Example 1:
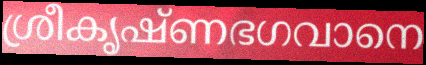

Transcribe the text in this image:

ശ്രീകൃഷ്ണഭഗവാനെ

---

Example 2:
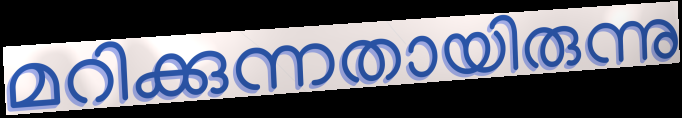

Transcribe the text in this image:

മറിക്കുന്നതായിരുന്നു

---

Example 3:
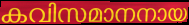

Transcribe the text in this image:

കവിസമാനനായ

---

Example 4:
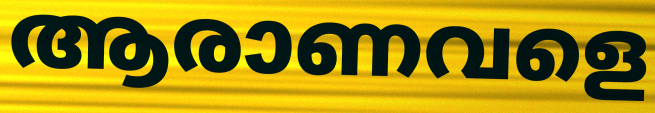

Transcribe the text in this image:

ആരാണവളെ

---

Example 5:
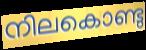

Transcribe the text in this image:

നിലകൊണ്ടു